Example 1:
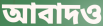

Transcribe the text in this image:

আবাদও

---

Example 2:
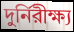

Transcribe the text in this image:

দুর্নিরীক্ষ্য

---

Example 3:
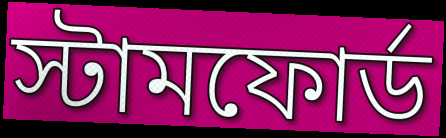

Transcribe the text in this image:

স্টামফোর্ড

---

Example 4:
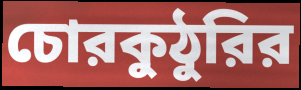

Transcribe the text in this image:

চোরকুঠুরির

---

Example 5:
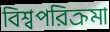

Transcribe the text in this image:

বিশ্বপরিক্রমা